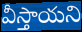
వీస్తాయని